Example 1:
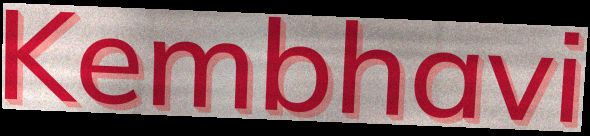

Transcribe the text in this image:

Kembhavi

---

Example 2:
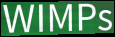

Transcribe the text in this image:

WIMPs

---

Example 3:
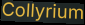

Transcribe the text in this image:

Collyrium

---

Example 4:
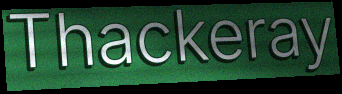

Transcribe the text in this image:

Thackeray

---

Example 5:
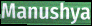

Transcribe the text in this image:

Manushya